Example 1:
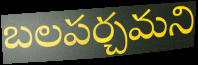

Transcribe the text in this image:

బలపర్చమని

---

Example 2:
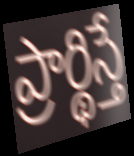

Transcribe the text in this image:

ప్రార్థిస్తే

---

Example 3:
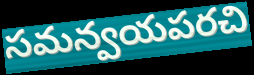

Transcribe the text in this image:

సమన్వయపరచి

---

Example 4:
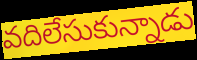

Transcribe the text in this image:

వదిలేసుకున్నాడు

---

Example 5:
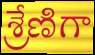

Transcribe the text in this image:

శ్రేణిగా